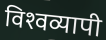
विश्वव्यापी